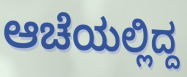
ಆಚೆಯಲ್ಲಿದ್ದ